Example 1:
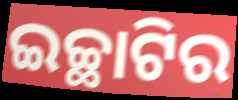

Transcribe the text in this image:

ଇଚ୍ଛାଟିର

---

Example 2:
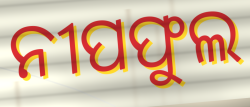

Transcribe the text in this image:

ନୀପଫୁଲ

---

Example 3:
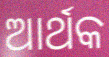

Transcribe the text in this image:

ଆର୍ଥକ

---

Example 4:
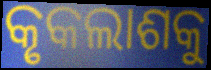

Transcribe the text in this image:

କୃକଲାଶକୁ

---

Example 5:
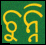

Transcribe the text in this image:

ଚୁନ୍ନି